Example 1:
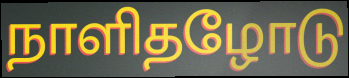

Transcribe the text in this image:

நாளிதழோடு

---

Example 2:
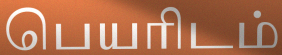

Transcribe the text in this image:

பெயரிடம்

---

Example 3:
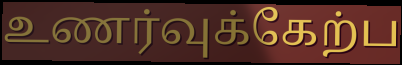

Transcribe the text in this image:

உணர்வுக்கேற்ப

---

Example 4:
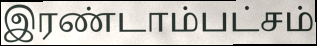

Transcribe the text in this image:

இரண்டாம்பட்சம்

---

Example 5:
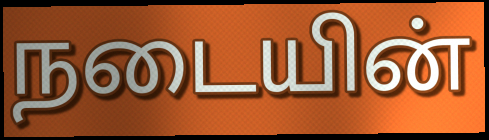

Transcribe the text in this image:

நடையின்